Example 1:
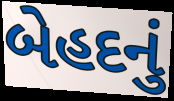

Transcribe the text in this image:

બેહદનું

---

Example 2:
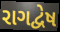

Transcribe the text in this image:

રાગદ્વેષ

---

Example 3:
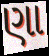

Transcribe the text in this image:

ણા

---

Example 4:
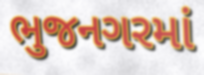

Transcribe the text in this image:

ભુજનગરમાં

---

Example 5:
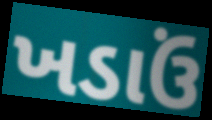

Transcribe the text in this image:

ખડાઉં